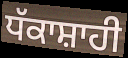
ਧੱਕਾਸ਼ਾਹੀ